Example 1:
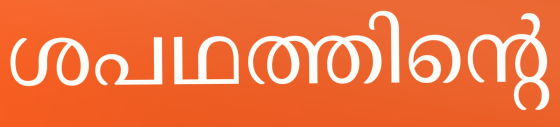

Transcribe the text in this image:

ശപഥത്തിന്റെ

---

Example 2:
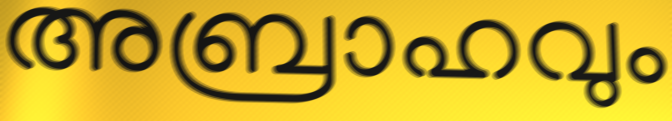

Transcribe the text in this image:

അബ്രാഹവും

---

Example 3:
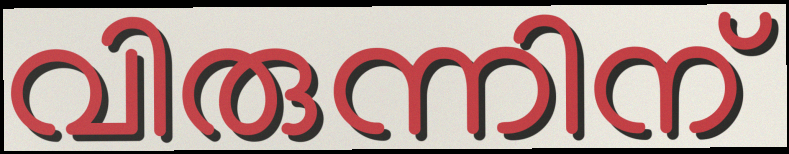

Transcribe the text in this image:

വിരുന്നിന്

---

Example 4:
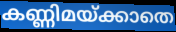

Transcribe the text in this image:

കണ്ണിമയ്ക്കാതെ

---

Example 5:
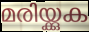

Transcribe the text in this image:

മരിയ്ക്കുക